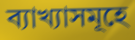
ব্যাখ্যাসমূহে